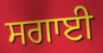
ਸਗਾਈ